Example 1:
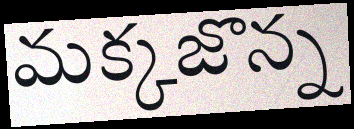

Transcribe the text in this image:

మక్కజొన్న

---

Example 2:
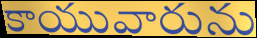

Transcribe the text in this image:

కాయువారును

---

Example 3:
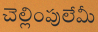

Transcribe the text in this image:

చెల్లింపులేమీ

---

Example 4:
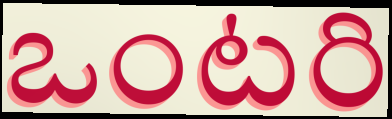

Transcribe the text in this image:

ఒంటరి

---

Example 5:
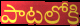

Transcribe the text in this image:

పాటలోకి